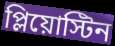
প্লিয়োস্টিন